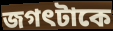
জগৎটাকে